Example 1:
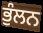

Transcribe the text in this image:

ਭੁੰਲਨ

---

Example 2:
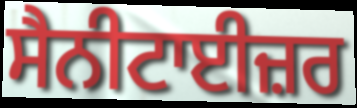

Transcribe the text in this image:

ਸੈਨੀਟਾਈਜ਼ਰ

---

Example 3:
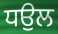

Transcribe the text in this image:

ਧਉਲ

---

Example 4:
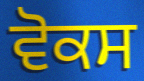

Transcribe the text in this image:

ਵੋਕਸ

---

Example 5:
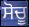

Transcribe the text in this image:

ਸੋਚੂ